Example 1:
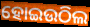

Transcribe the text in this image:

ହୋଇଉଠିଲ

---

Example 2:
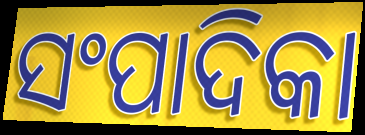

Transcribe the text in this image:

ସଂପାଦିକା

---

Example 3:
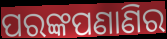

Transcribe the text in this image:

ପରଙ୍କପଣାଣିର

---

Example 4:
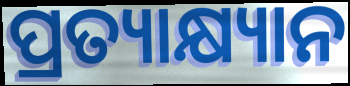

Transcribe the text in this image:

ପ୍ରତ୍ୟାକ୍ଷ୍ୟାନ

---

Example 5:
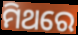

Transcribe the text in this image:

ମିଥରେ